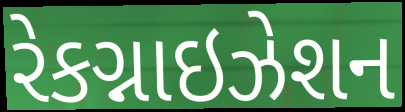
રેકગ્નાઇઝેશન